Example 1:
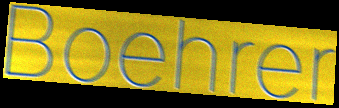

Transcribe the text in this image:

Boehrer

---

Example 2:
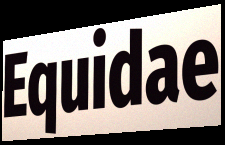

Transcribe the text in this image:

Equidae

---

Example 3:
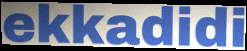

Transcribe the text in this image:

ekkadidi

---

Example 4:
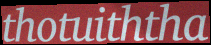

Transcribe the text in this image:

thotuiththa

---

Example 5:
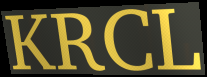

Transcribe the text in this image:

KRCL